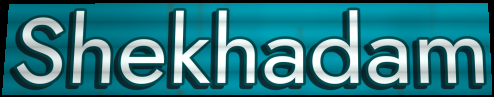
Shekhadam